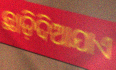
ଛାଡ଼ିଦିଆଯାଏ